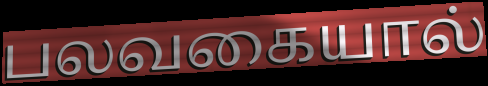
பலவகையால்